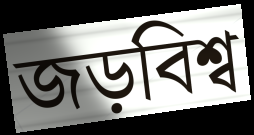
জড়বিশ্ব